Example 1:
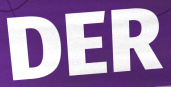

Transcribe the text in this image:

DER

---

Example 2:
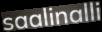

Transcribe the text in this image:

saalinalli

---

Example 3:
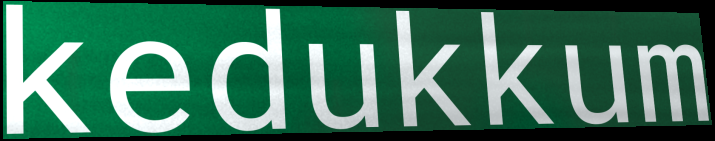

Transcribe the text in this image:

kedukkum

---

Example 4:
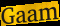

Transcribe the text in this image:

Gaam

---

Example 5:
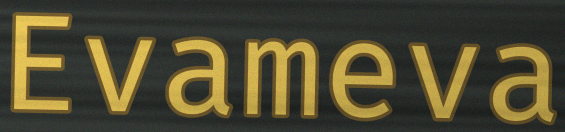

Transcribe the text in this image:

Evameva